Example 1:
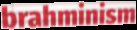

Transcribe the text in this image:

brahminism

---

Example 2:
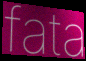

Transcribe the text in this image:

fata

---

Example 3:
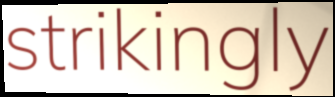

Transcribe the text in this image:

strikingly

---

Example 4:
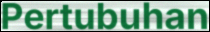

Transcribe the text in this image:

Pertubuhan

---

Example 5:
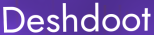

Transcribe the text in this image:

Deshdoot